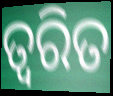
ତ୍ବରିତ